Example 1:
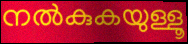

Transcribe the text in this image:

നൽകുകയുള്ളൂ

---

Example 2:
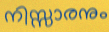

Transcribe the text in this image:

നിസ്സാരനും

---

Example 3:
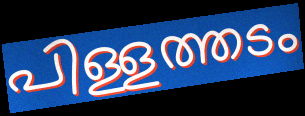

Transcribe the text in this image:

പിള്ളത്തടം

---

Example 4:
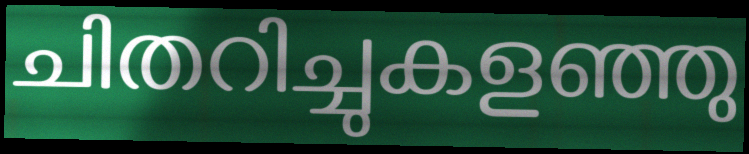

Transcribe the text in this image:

ചിതറിച്ചുകളഞ്ഞു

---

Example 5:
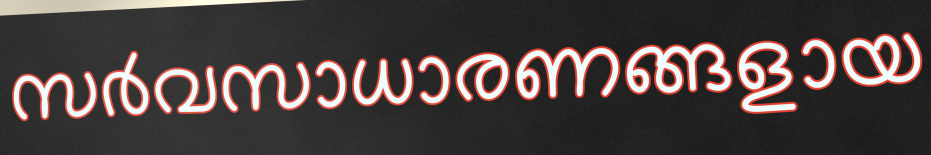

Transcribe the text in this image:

സർവസാധാരണങ്ങളായ